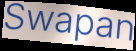
Swapan